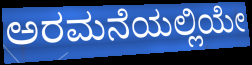
ಅರಮನೆಯಲ್ಲಿಯೇ